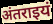
अंतराइयं